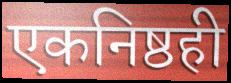
एकनिष्ठही